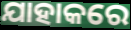
ଯାହାକରେ